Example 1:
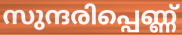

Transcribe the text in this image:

സുന്ദരിപ്പെണ്ണ്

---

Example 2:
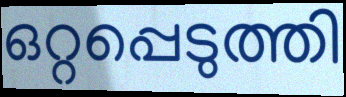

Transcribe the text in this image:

ഒറ്റപ്പെടുത്തി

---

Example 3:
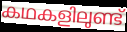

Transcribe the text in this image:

കഥകളിലുണ്ട്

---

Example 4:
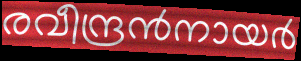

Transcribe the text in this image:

രവീന്ദ്രൻനായർ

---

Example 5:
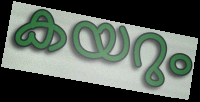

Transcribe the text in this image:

കയറും